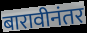
बारावीनंतर